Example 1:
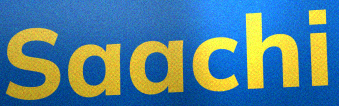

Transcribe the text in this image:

Saachi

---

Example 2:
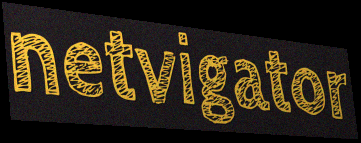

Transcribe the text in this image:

netvigator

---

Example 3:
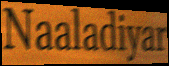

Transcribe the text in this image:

Naaladiyar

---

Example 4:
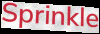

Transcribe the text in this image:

Sprinkle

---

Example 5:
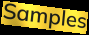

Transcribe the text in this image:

Samples